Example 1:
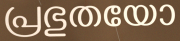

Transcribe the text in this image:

പ്രഭുതയോ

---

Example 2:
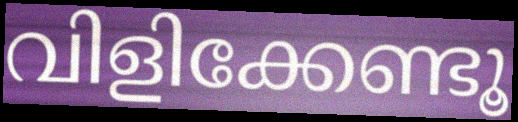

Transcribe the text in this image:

വിളിക്കേണ്ടൂ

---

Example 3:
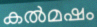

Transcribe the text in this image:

കൽമഷം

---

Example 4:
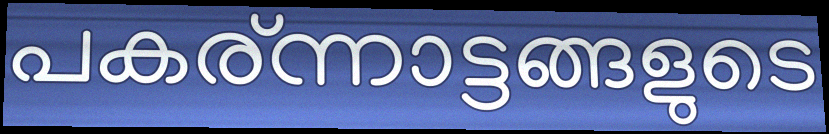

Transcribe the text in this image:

പകര്ന്നാട്ടങ്ങളുടെ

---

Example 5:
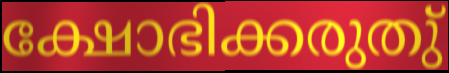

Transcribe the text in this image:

ക്ഷോഭിക്കരുതു്